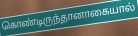
கொண்டிருந்தானாகையால்